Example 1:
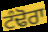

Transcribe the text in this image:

ਟੰਢੋਰਾ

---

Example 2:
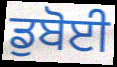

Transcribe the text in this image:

ਡੁਬੋਈ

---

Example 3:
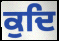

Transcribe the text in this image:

ਕੁਦਿ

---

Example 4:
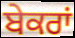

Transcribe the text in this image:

ਬੇਕਰਾਂ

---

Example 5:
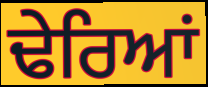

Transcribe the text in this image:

ਢੇਰਿਆਂ